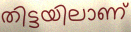
തിട്ടയിലാണ്